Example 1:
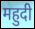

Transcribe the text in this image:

महुदी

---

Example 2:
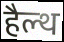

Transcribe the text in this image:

हैल्थ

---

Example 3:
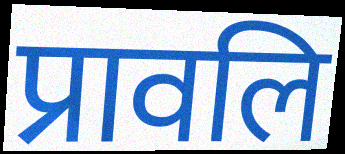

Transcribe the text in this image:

प्रावलि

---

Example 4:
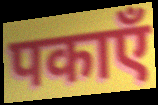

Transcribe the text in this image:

पकाएँ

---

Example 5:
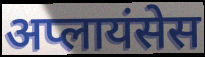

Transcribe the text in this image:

अप्लायंसेस